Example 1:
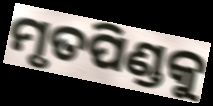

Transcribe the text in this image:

ମୃତପିଣ୍ଡକୁ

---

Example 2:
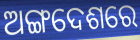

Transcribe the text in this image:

ଅଙ୍ଗଦେଶରେ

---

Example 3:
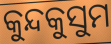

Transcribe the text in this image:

କୁନ୍ଦକୁସୁମ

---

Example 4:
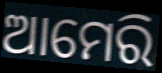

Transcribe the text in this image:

ଆମେରି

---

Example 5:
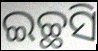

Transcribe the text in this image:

ଇଚ୍ଛସି